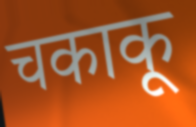
चकाकू